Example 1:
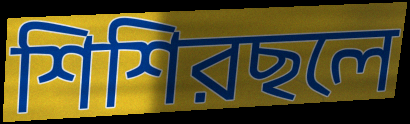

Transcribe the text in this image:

শিশিরছলে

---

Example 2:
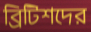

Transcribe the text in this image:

ব্রিটিশদের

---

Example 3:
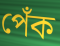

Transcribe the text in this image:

পেঁক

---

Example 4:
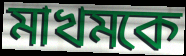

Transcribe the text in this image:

মাখমকে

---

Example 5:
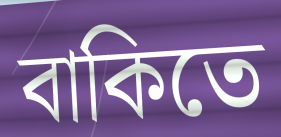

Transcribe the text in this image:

বাকিতে